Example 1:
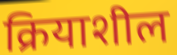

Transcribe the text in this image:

क्रियाशील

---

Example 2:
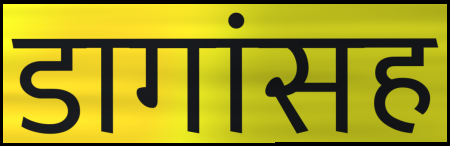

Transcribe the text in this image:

डागांसह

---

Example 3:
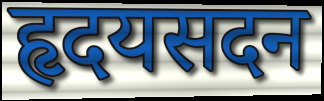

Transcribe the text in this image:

हृदयसदन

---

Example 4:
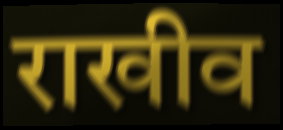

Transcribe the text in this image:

राखीव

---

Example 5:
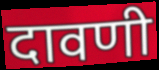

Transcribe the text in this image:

दावणी